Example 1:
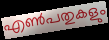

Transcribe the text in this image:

എൺപതുകളും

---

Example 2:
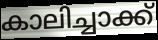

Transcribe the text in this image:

കാലിച്ചാക്ക്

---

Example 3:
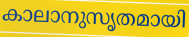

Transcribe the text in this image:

കാലാനുസൃതമായി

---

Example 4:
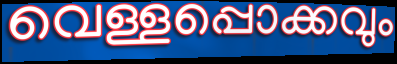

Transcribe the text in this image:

വെള്ളപ്പൊക്കവും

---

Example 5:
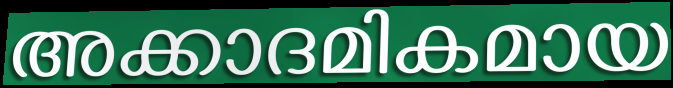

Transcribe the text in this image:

അക്കാദമികമായ